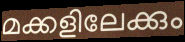
മക്കളിലേക്കും